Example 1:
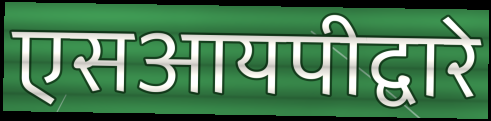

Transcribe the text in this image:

एसआयपीद्वारे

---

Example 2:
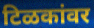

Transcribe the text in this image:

टिळकांवर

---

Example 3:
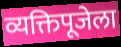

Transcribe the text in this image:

व्यक्तिपूजेला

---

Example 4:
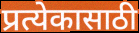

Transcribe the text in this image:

प्रत्येकासाठी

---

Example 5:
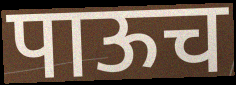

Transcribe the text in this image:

पाऊच